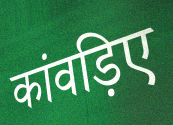
कांवड़िए